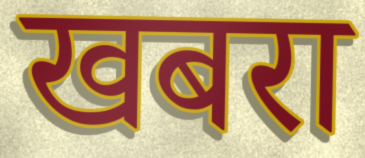
खबरा